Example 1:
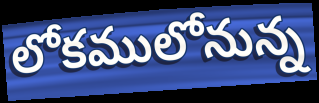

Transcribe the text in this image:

లోకములోనున్న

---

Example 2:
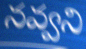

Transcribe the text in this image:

నవ్వని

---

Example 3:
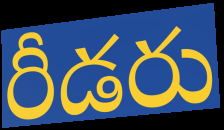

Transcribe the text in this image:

రీడరు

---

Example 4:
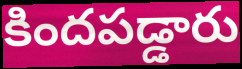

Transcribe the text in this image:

కిందపడ్డారు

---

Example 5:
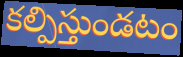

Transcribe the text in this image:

కల్పిస్తుండటం